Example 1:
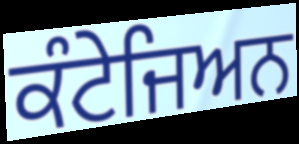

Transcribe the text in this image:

ਕੰਟੇਜਿਅਨ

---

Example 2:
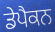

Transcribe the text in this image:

ਡੇਪੈਕਨ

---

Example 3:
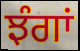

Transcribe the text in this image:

ਝੰਗਾਂ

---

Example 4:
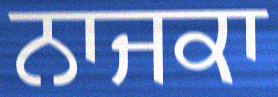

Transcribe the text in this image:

ਨਾਜਕਾ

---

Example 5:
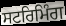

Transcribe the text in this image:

ਸਟਰਿਮਿੰਗ